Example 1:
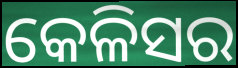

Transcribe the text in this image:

କେଳିସର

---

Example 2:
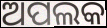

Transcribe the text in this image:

ଅପଲକ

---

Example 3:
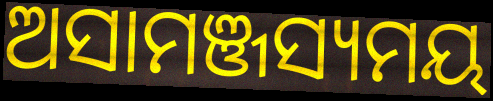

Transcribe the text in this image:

ଅସାମଞ୍ଜସ୍ୟମୟ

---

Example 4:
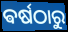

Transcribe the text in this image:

ଵର୍ଷଠାରୁ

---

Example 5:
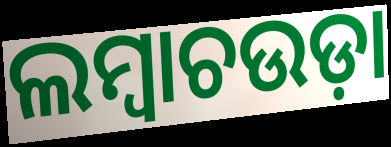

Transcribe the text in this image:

ଲମ୍ବାଚଉଡ଼ା